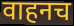
वाहनच